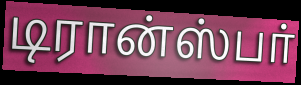
டிரான்ஸ்பர்